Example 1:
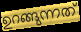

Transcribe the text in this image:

ഉറങ്ങുന്നത്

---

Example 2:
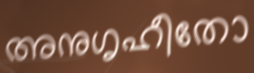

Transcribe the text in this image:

അനുഗൃഹീതോ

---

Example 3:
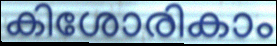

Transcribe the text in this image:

കിശോരികാം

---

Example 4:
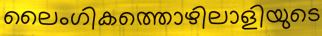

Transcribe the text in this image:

ലൈംഗികത്തൊഴിലാളിയുടെ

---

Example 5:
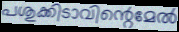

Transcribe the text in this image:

പശുക്കിടാവിന്റെമേൽ